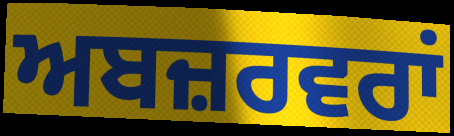
ਅਬਜ਼ਰਵਰਾਂ